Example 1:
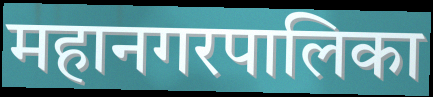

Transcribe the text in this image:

महानगरपालिका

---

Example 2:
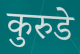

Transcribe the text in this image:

कुरुडे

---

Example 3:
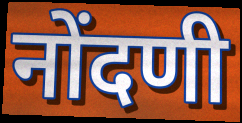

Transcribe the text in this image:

नोंदणी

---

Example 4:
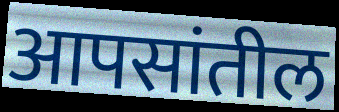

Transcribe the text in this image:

आपसांतील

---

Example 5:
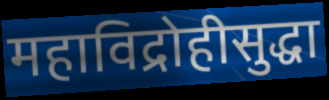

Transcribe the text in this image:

महाविद्रोहीसुद्धा